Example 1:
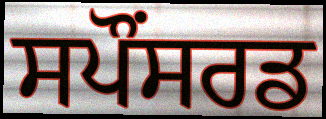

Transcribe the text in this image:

ਸਪੌਂਸਰਡ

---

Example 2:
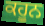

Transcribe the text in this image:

ਕਹੂਨ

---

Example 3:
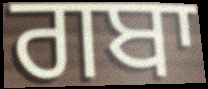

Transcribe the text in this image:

ਗਬਾ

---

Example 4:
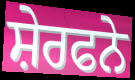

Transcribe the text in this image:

ਸ਼ੇਰਫਨੇ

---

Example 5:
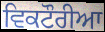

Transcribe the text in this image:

ਵਿਕਟੌਰੀਆ